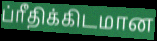
ப்ரீதிக்கிடமான